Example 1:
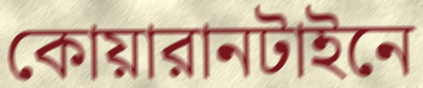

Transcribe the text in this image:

কোয়ারানটাইনে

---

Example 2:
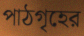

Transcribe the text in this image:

পাঠগৃহের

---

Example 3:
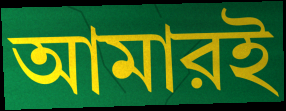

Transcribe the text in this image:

আমারই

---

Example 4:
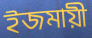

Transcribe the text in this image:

ইজমায়ী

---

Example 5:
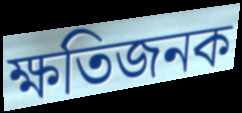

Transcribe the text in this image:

ক্ষতিজনক